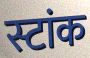
स्टांक